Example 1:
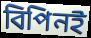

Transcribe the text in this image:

বিপিনই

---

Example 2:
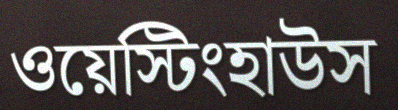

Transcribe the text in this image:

ওয়েস্টিংহাউস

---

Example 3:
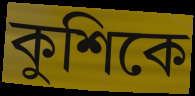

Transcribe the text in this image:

কুশিকে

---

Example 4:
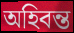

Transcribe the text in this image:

অহিবন্ত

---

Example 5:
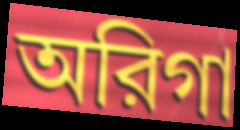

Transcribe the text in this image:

অরিগা